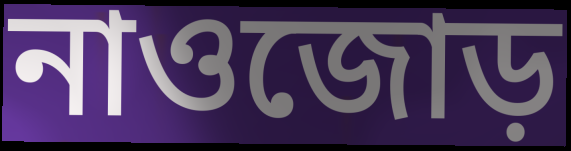
নাওজোড়